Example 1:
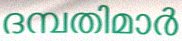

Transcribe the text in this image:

ദമ്പതിമാർ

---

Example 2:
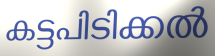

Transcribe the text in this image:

കട്ടപിടിക്കൽ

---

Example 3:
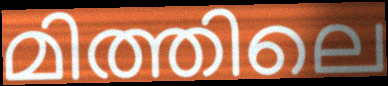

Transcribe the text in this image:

മിത്തിലെ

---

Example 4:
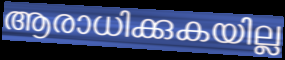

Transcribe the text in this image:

ആരാധിക്കുകയില്ല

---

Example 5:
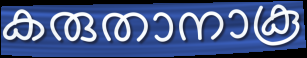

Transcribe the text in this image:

കരുതാനാകൂ